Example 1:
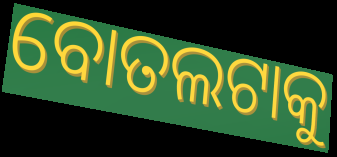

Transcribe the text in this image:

ବୋତଲଟାକୁ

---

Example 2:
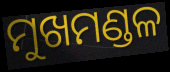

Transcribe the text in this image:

ମୁଖମଣ୍ଡଳ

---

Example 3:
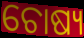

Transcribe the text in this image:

ଚୋଷ୍ୟ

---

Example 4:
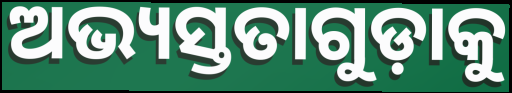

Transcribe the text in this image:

ଅଭ୍ୟସ୍ତତାଗୁଡ଼ାକୁ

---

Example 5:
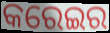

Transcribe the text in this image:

କରେଇର